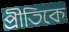
প্রীতিকে